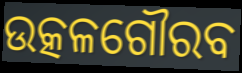
ଉତ୍କଳଗୌରବ